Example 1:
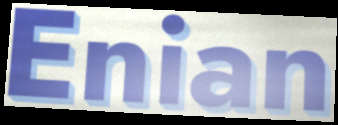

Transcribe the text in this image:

Enian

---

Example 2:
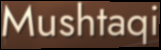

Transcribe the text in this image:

Mushtaqi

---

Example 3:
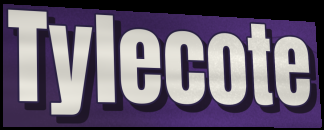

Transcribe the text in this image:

Tylecote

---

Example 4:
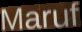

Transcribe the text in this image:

Maruf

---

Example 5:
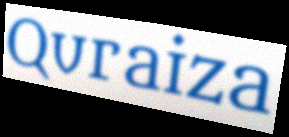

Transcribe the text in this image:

Quraiza